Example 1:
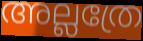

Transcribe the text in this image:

അല്ലത്രേ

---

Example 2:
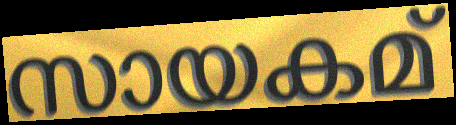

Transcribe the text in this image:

സായകമ്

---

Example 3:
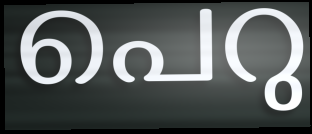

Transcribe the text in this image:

പെറു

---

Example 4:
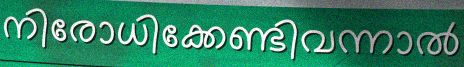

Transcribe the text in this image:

നിരോധിക്കേണ്ടിവന്നാൽ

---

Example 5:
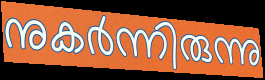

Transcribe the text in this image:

നുകർന്നിരുന്നു